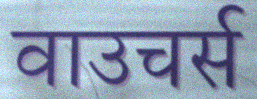
वाउचर्स